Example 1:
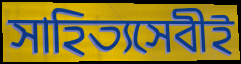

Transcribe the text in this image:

সাহিত্যসেবীই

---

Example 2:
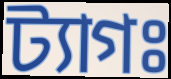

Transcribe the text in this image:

ট্যাগঃ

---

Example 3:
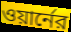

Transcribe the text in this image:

ওয়ার্নের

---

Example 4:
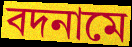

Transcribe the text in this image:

বদনামে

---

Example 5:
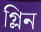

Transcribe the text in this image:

গ্লিন